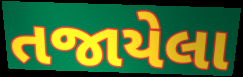
તજાયેલા